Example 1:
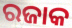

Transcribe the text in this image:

ରଜାକ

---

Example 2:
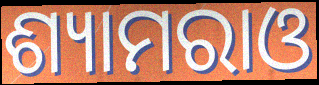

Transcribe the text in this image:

ଶ୍ୟାମରାଓ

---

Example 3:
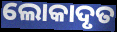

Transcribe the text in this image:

ଲୋକାଦୃତ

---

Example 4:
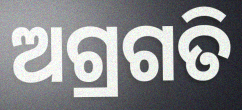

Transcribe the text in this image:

ଅଗ୍ରଗତି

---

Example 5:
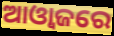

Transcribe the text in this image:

ଆଓ୍ୱାଜରେ